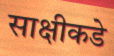
साक्षीकडे